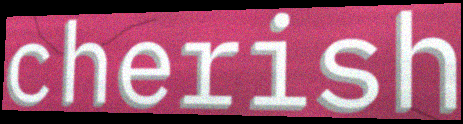
cherish